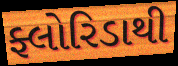
ફ્લોરિડાથી